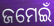
ଜମେଇଁ